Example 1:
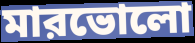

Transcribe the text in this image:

মারভোলো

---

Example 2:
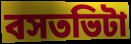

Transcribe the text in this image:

বসতভিটা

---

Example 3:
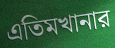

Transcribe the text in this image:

এতিমখানার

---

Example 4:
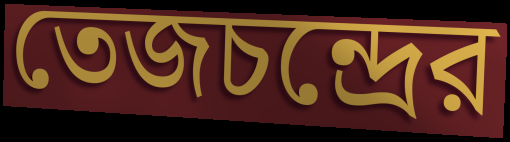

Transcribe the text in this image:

তেজচন্দ্রের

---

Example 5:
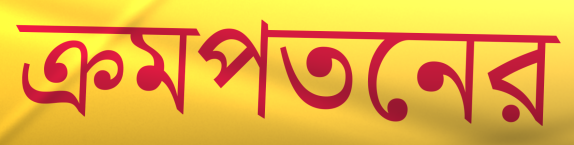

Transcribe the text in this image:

ক্রমপতনের